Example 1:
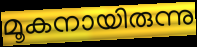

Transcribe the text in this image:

മൂകനായിരുന്നു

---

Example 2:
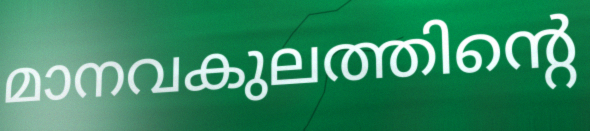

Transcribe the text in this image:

മാനവകുലത്തിന്റെ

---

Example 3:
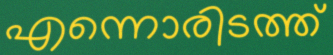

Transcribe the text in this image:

എന്നൊരിടത്ത്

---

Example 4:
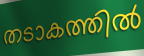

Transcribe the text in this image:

തടാകത്തിൽ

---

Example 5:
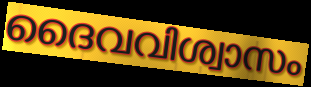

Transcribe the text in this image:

ദൈവവിശ്വാസം